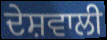
ਦੇਸ਼ਵਾਲੀ